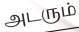
அடரும்